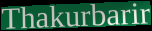
Thakurbarir